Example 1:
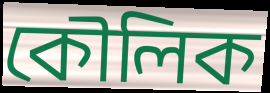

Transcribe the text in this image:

কৌলিক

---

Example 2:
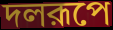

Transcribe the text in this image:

দলরূপে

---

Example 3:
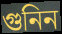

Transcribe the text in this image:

গুনিন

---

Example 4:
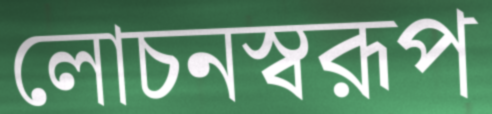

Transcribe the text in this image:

লোচনস্বরূপ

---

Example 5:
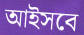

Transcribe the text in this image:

আইসবে